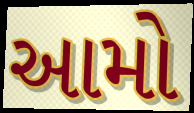
આમો